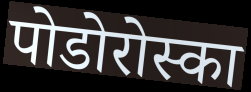
पोडोरोस्का